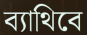
ব্যাথিবে